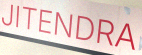
JITENDRA